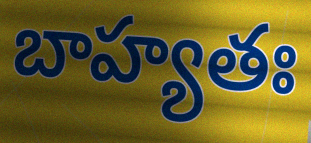
బాహ్యతః